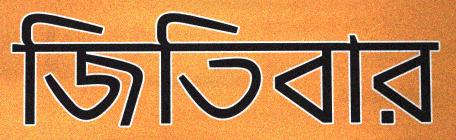
জিতিবার